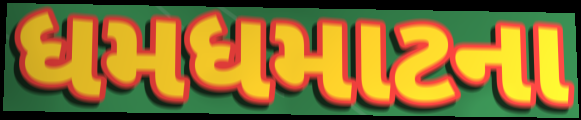
ધમધમાટના